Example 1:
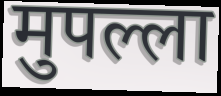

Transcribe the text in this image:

मुपल्ला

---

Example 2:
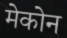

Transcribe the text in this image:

मेकोन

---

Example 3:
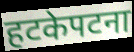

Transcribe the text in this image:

हटकेपटना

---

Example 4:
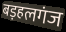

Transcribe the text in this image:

बड़हलगंज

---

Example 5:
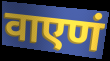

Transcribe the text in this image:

वाएणं